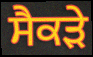
ਸੈਕੜੇ